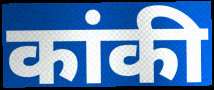
कांकी